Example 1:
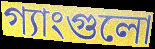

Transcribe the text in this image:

গ্যাংগুলো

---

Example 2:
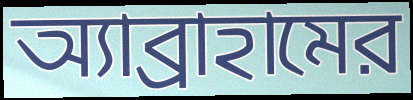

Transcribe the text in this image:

অ্যাব্রাহামের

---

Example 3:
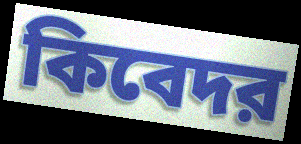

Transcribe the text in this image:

কিবেদর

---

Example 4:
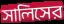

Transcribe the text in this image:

সালিসের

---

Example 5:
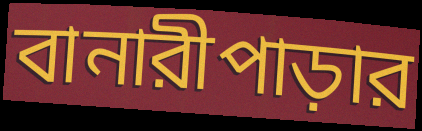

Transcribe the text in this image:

বানারীপাড়ার